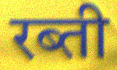
रब्ती